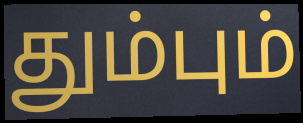
தும்பும்